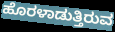
ಹೊರಳಾಡುತ್ತಿರುವ